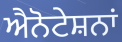
ਐਨੋਟੇਸ਼ਨਾਂ